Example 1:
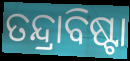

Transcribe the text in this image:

ତନ୍ଦ୍ରାବିଷ୍ଟା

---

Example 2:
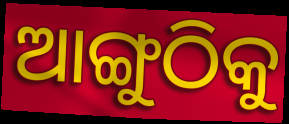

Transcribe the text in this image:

ଆଙ୍ଗୁଠିକୁ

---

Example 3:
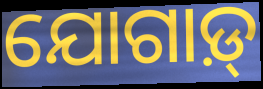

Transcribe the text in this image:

ଯୋଗାଡ଼୍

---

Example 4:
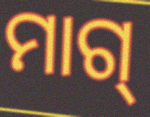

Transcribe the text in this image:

ମାଗ୍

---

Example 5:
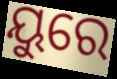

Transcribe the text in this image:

ୟୁରେ